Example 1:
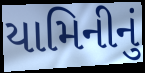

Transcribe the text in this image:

યામિનીનું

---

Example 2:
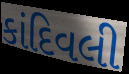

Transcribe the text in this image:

કાંદિવલી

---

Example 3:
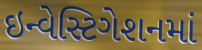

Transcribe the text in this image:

ઇન્વેસ્ટિગેશનમાં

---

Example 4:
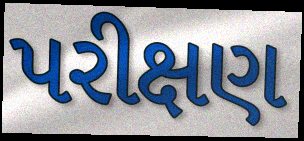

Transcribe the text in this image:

પરીક્ષણ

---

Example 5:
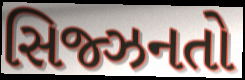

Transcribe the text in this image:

સિજ્ઝનતો